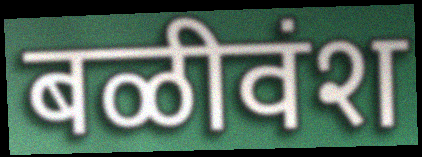
बळीवंश